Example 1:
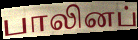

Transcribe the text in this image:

பாலினப்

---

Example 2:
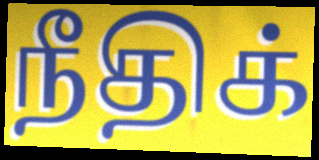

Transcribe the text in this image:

நீதிக்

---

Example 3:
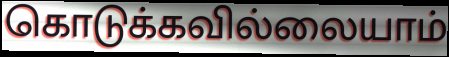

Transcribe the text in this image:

கொடுக்கவில்லையாம்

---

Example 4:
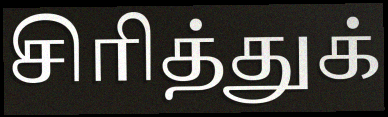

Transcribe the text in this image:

சிரித்துக்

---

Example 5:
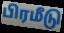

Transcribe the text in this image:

பிரமீடு